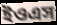
ইওএস